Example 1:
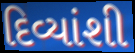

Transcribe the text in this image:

દિવ્યાંશી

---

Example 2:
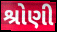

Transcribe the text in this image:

શ્રોણી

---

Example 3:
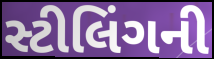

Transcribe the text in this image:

સ્ટીલિંગની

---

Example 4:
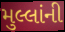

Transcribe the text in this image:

મુલ્લાંની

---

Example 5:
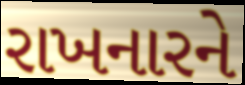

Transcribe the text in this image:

રાખનારને